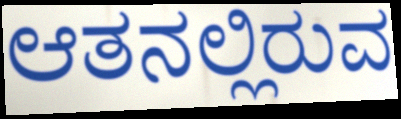
ಆತನಲ್ಲಿರುವ